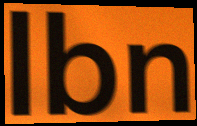
lbn